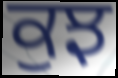
ਕੁਝ